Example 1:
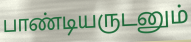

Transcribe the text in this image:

பாண்டியருடனும்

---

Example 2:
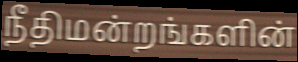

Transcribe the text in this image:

நீதிமன்றங்களின்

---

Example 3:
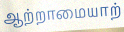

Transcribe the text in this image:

ஆற்றாமையாற்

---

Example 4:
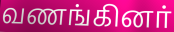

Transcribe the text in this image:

வணங்கினர்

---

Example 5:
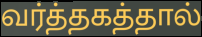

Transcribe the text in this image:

வர்த்தகத்தால்